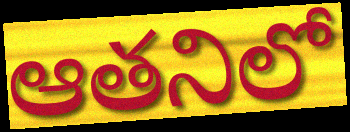
ఆతనిలో